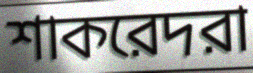
শাকরেদরা